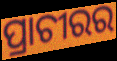
ପ୍ରାଚୀରର